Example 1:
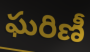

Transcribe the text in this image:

ఘరిణీ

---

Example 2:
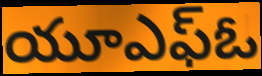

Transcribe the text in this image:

యూఎఫ్ఓ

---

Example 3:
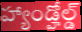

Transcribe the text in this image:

హ్యాండ్హోల్డ్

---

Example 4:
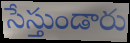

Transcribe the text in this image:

సేస్తుండారు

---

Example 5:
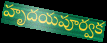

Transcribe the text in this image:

హృదయపూర్వక